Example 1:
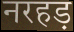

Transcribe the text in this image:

नरहड़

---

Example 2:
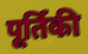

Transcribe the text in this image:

पूर्तिकी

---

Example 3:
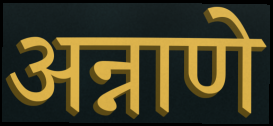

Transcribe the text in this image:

अन्नाणे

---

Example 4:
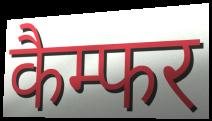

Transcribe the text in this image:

कैम्फर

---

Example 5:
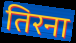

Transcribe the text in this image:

तिरना